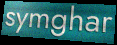
symghar